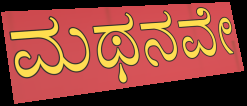
ಮಥನವೇ